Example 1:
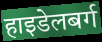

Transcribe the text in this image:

हाइडेलबर्ग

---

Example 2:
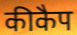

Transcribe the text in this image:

कीकैप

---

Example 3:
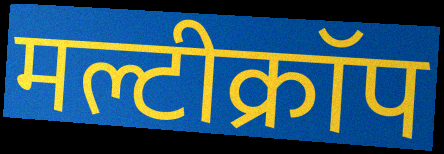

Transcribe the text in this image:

मल्टीक्रॉप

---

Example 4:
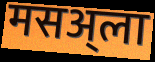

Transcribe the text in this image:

मसअ्ला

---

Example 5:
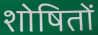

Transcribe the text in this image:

शोषितों